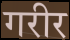
गरीर